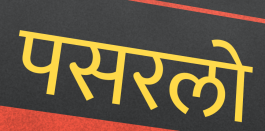
पसरलो